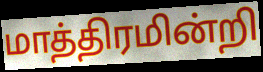
மாத்திரமின்றி